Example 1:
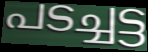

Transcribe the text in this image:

പടച്ചട്ട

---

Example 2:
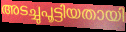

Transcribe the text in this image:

അടച്ചുപൂട്ടിയതായി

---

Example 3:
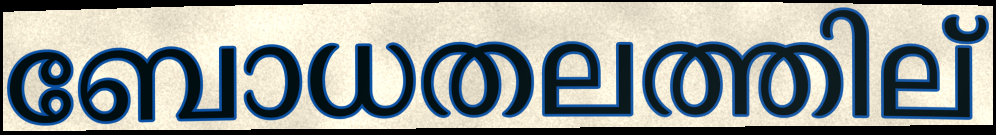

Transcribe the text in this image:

ബോധതലത്തില്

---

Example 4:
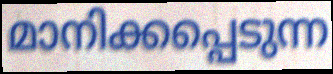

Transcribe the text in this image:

മാനിക്കപ്പെടുന്ന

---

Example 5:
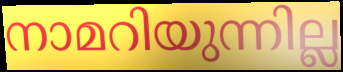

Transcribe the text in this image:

നാമറിയുന്നില്ല